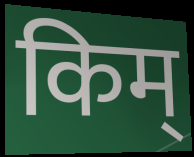
किम्